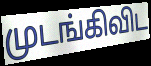
முடங்கிவிட